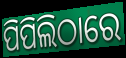
ପିପିଲିଠାରେ